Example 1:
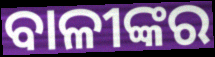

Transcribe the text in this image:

ବାଳୀଙ୍କର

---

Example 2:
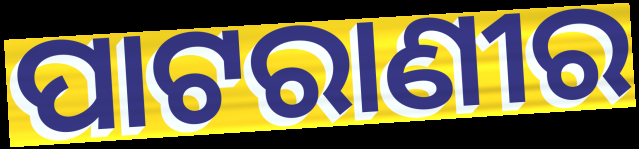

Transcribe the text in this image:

ପାଟରାଣୀର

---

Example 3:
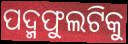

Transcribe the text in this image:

ପଦ୍ମଫୁଲଟିକୁ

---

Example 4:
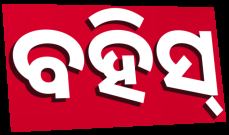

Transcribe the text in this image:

ବହିସ୍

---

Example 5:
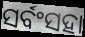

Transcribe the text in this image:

ସର୍ବଂସହା